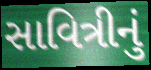
સાવિત્રીનું